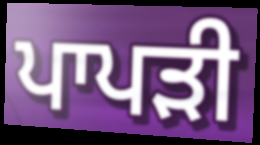
ਪਾਪੜੀ